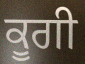
ਕੂਗੀ